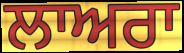
ਲਾਅਰਾ